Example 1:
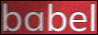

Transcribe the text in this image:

babel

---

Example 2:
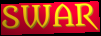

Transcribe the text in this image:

SWAR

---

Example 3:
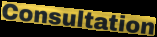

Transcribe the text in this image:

Consultation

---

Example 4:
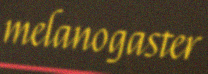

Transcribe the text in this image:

melanogaster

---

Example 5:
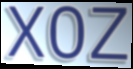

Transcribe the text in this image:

XOZ